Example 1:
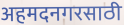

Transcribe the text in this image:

अहमदनगरसाठी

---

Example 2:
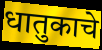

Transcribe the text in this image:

धातुकाचे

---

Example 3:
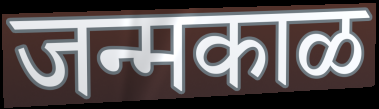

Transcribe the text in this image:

जन्मकाळ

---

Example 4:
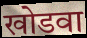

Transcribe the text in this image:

खोडवा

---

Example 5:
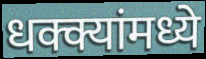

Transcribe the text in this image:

धक्क्यांमध्ये